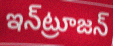
ఇన్‌ట్రూజన్